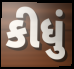
કીધું